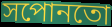
সপোনতো